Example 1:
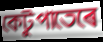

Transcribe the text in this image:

কেটুপাতেৰে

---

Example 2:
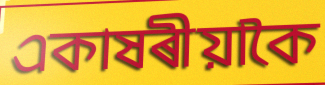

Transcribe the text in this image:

একাষৰীয়াকৈ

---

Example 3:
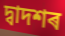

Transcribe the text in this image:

দ্বাদশৰ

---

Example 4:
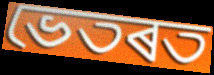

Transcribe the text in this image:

ভেতৰত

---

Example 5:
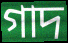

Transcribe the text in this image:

গাদ